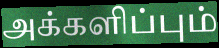
அக்களிப்பும்